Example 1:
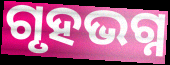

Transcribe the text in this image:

ଗୃହଭଗ୍ନ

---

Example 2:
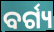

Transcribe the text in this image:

ବର୍ଗ୍ୟ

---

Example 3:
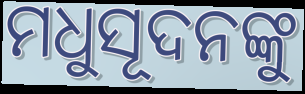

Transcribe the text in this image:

ମଧୁସୂଦନଙ୍କୁ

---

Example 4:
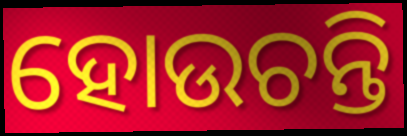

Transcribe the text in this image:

ହୋଉଚନ୍ତି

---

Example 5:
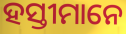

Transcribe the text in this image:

ହସ୍ତୀମାନେ